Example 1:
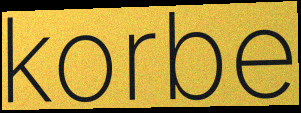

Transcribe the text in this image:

korbe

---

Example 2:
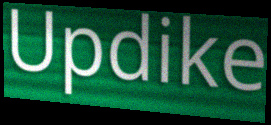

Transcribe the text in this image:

Updike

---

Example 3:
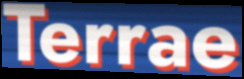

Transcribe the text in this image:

Terrae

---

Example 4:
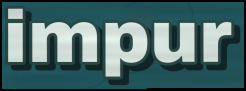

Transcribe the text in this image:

impur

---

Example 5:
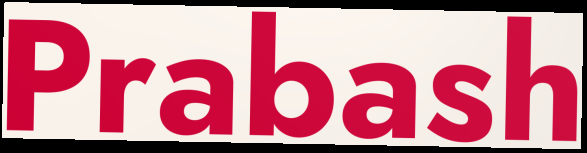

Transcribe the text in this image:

Prabash